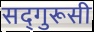
सद्‍गुरूसी